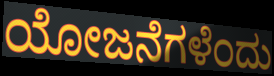
ಯೋಜನೆಗಳೆಂದು